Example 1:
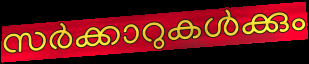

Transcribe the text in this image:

സർക്കാറുകൾക്കും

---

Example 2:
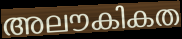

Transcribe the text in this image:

അലൗകികത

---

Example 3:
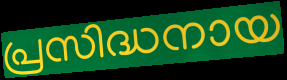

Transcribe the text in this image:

പ്രസിദ്ധനായ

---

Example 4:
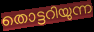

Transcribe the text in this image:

തൊട്ടറിയുന്ന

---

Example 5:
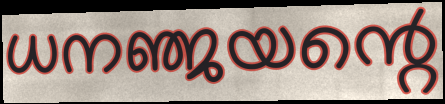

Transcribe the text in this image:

ധനഞ്ജയന്റെ